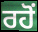
ਰਹੋਂ